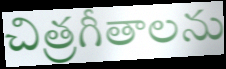
చిత్రగీతాలను